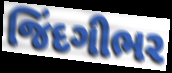
જિંદગીભર